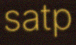
satp